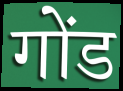
गोंड